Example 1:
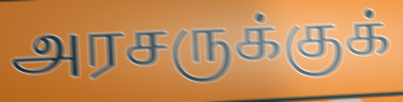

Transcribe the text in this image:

அரசருக்குக்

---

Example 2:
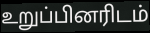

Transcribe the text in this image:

உறுப்பினரிடம்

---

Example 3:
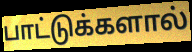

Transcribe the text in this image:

பாட்டுக்களால்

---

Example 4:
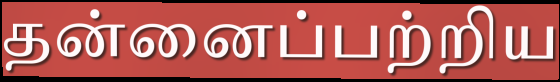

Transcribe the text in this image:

தன்னைப்பற்றிய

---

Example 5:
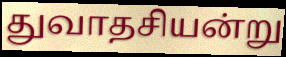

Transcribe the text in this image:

துவாதசியன்று